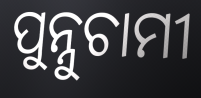
ପୁନ୍ନୁଚାମୀ